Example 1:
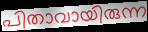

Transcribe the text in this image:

പിതാവായിരുന്ന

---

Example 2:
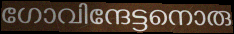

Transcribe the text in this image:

ഗോവിന്ദേട്ടനൊരു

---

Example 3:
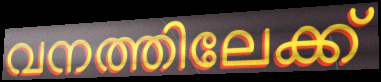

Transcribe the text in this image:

വനത്തിലേക്ക്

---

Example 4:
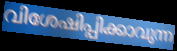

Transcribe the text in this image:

വിശേഷിപ്പിക്കാവുന്ന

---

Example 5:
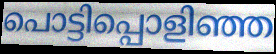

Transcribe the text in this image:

പൊട്ടിപ്പൊളിഞ്ഞ